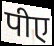
पीए